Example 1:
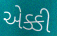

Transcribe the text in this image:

એક્કી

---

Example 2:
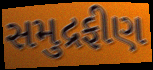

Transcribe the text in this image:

સમુદ્રફીણ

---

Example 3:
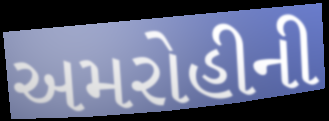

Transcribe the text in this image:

અમરોહીની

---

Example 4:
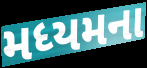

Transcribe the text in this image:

મધ્યમના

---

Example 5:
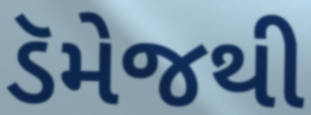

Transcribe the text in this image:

ડૅમેજથી